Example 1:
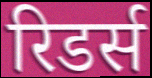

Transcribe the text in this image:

रिडर्स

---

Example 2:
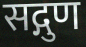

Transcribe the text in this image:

सद्गुण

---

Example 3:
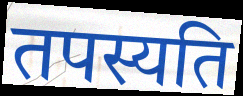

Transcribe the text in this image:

तपस्यति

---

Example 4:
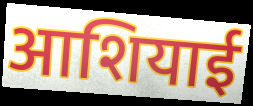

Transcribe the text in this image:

आशियाई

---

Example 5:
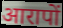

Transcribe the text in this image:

आरापों